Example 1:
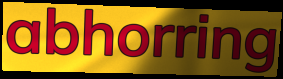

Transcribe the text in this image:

abhorring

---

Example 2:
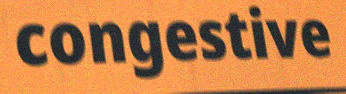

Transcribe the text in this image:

congestive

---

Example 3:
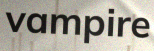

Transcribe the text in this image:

vampire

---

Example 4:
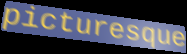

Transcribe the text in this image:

picturesque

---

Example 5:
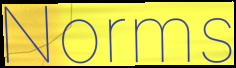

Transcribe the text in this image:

Norms